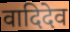
वादिदेव